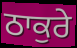
ਠਾਕੁਰੇ